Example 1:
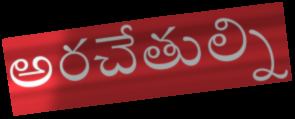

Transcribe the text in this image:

అరచేతుల్ని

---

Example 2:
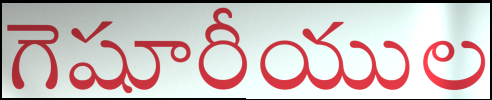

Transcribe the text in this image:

గెషూరీయుల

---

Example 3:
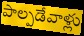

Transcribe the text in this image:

పాల్పడేవాళ్లు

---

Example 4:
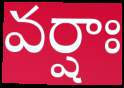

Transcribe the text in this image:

వర్షాః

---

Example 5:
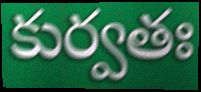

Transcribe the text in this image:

కుర్వతః